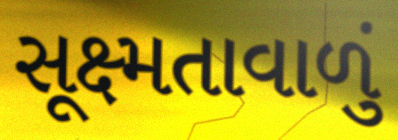
સૂક્ષ્મતાવાળું